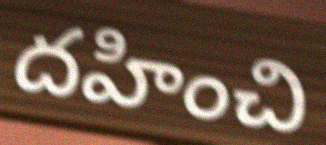
దహించి